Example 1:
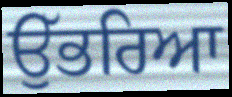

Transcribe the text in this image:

ਉੱਭਰਿਆ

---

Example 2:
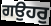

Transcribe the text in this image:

ਗਉਹਰੁ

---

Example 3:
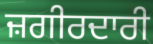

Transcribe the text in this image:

ਜ਼ਗੀਰਦਾਰੀ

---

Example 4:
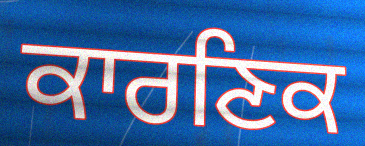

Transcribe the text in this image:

ਕਾਰਣਿਕ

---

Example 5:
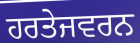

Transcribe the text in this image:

ਹਰਤੇਜਵਰਨ